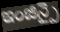
ఇంజిన్పై